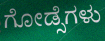
ಗೋಡ್ಸೆಗಳು